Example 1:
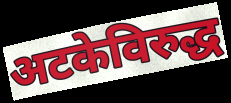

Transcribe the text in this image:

अटकेविरुद्ध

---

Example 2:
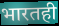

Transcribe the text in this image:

भारतही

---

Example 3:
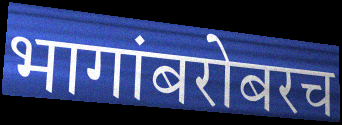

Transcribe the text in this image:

भागांबरोबरच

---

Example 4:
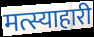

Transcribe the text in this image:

मत्स्याहारी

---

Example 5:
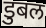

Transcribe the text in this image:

डुबल